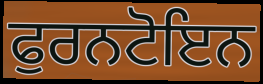
ਫੁਰਨਟੋਇਨ